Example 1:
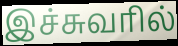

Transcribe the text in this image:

இச்சுவரில்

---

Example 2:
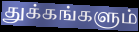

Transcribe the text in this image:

துக்கங்களும்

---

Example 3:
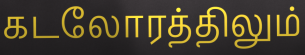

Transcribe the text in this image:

கடலோரத்திலும்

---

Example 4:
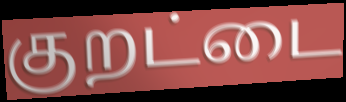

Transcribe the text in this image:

குறட்டை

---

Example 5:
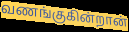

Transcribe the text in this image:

வணங்குகின்றான்